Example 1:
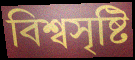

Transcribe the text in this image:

বিশ্বসৃষ্টি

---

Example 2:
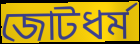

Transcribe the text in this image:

জোটধর্ম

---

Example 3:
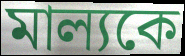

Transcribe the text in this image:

মাল্যকে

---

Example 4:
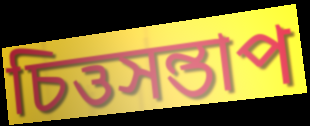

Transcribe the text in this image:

চিত্তসন্তাপ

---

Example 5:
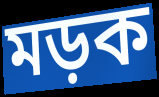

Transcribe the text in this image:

মড়ক